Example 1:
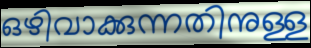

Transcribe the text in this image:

ഒഴിവാക്കുന്നതിനുള്ള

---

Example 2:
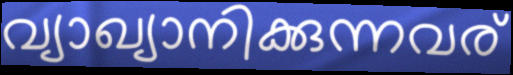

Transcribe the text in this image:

വ്യാഖ്യാനിക്കുന്നവര്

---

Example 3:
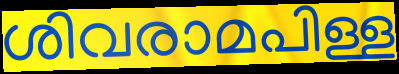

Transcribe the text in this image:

ശിവരാമപിള്ള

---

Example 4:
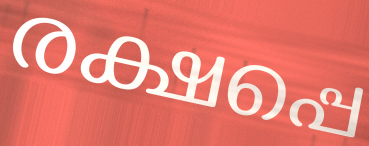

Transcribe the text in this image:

രക്ഷപ്പെ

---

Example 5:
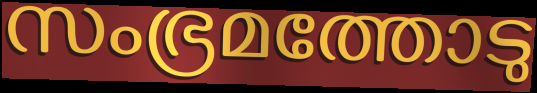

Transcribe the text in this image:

സംഭ്രമത്തോടു